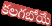
కలగబోయే